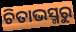
ଚିତାଭସ୍ମରୁ